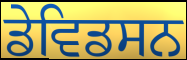
ਡੇਵਿਡਸਨ